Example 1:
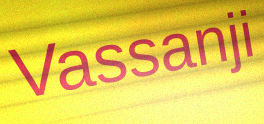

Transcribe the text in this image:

Vassanji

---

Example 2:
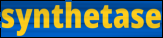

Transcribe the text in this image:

synthetase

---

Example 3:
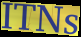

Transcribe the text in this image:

ITNs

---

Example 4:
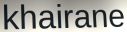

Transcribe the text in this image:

khairane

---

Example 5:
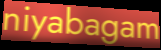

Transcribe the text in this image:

niyabagam